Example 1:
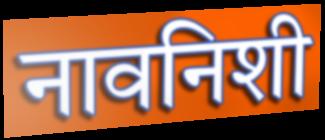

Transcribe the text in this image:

नावनिशी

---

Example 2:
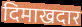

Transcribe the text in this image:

दिमाखदार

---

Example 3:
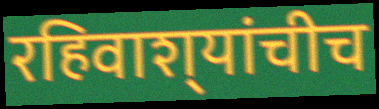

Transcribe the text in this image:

रहिवाश्यांचीच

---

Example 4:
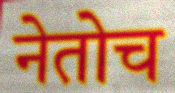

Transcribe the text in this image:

नेतोच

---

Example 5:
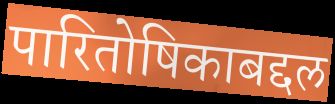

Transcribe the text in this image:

पारितोषिकाबद्दल